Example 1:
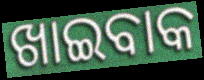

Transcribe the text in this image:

ଖାଇବାକ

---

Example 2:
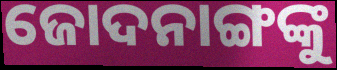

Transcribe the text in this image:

ଜୋଦନାଙ୍ଗଙ୍କୁ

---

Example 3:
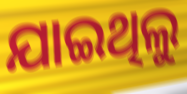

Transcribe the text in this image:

ଯାଇଥିଲୁ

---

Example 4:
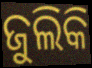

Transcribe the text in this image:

ଜୁଲିକି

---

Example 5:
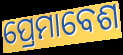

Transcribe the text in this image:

ପ୍ରେମାବେଶ